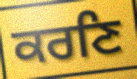
ਕਰਣਿ